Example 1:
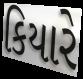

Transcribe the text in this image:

કિયારે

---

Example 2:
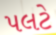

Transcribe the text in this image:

પલટે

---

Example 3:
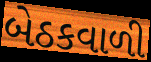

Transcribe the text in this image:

બેઠકવાળી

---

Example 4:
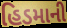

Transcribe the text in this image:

હિડમાની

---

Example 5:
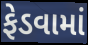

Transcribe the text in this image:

ફેડવામાં